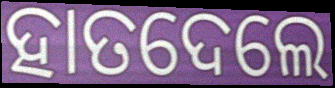
ହାତଦେଲେ